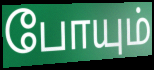
போயும்